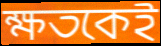
ক্ষতকেই